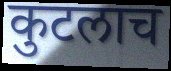
कुटलाच